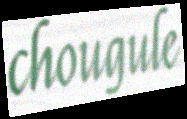
chougule